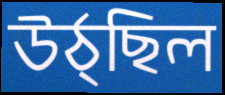
উঠ্ছিল